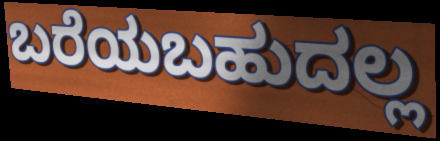
ಬರೆಯಬಹುದಲ್ಲ